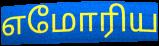
எமோரிய